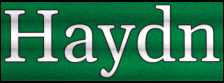
Haydn